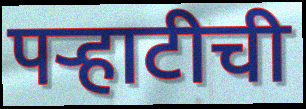
पऱ्हाटीची